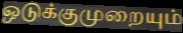
ஒடுக்குமுறையும்